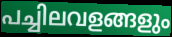
പച്ചിലവളങ്ങളും